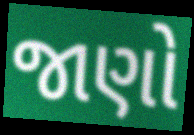
જાણો